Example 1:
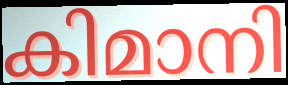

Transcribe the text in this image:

കിമാനി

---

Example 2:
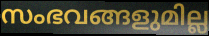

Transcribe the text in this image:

സംഭവങ്ങളുമില്ല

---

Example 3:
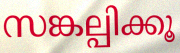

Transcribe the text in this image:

സങ്കല്പിക്കൂ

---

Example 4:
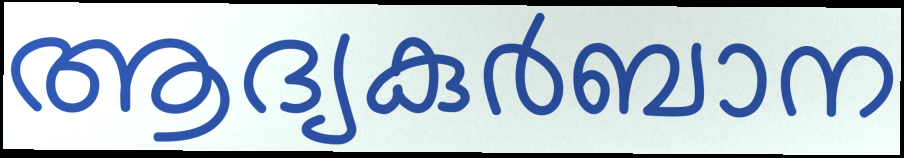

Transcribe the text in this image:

ആദ്യകുർബാന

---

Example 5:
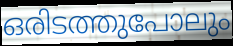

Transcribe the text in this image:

ഒരിടത്തുപോലും